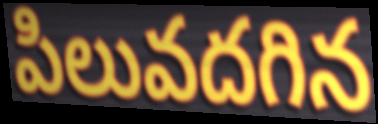
పిలువదగిన